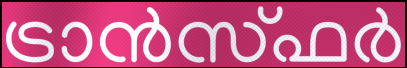
ട്രാൻസ്ഫർ